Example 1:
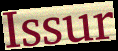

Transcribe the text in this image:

Issur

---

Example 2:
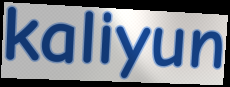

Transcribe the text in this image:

kaliyun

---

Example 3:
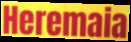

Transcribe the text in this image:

Heremaia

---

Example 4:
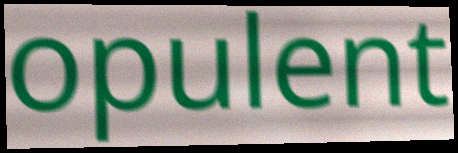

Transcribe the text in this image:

opulent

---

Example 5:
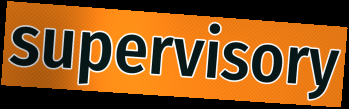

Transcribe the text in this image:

supervisory